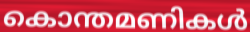
കൊന്തമണികൾ